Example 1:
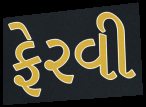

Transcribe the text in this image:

ફેરવી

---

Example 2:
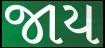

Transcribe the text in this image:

જાય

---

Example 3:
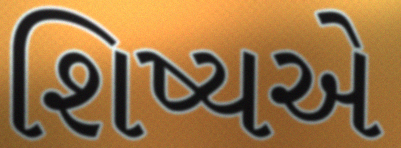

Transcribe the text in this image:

શિષ્યએ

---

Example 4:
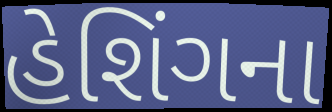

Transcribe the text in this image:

હેશિંગના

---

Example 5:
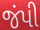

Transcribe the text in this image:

જંપી